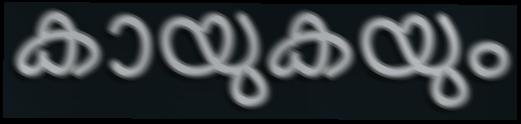
കായുകയും